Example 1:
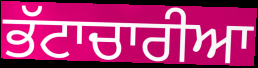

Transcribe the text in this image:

ਭੱਟਾਚਾਰੀਆ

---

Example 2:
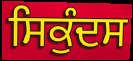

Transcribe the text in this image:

ਸਿਕੁੰਦਸ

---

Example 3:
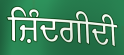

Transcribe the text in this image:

ਜ਼ਿੰਦਗੀਦੀ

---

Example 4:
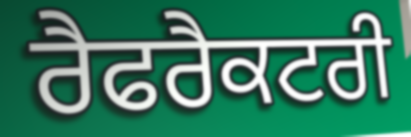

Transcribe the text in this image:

ਰੈਫਰੈਕਟਰੀ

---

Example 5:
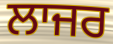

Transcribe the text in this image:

ਲਾਜਰ